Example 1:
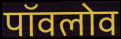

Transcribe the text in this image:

पॉवलोव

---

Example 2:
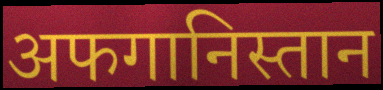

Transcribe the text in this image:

अफगानिस्तान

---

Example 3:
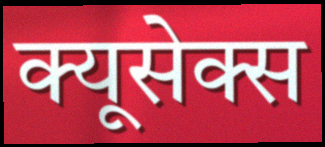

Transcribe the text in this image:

क्यूसेक्स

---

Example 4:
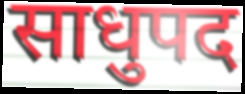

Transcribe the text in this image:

साधुपद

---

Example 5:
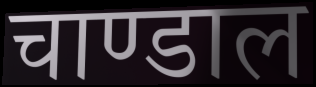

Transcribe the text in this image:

चाण्डाल